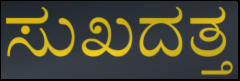
ಸುಖದತ್ತ